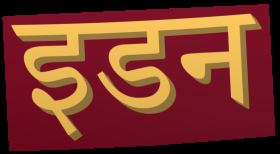
इडन